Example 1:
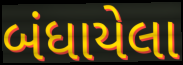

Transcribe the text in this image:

બંધાયેલા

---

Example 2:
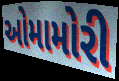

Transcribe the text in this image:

ઓમામોરી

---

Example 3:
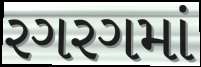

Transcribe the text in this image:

રગરગમાં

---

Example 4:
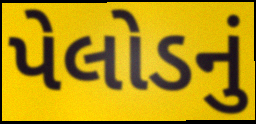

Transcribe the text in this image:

પેલોડનું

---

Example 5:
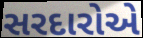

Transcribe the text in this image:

સરદારોએ